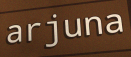
arjuna